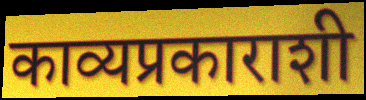
काव्यप्रकाराशी